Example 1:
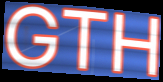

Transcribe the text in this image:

GTH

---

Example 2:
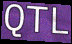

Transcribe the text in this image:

QTL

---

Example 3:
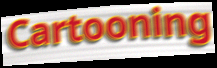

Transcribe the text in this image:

Cartooning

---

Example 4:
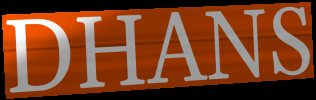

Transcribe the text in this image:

DHANS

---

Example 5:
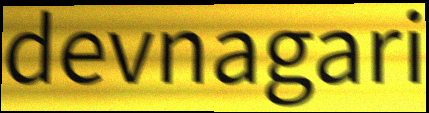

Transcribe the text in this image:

devnagari